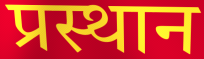
प्रस्थान